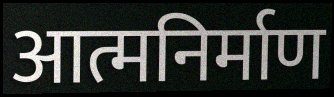
आत्मनिर्माण